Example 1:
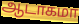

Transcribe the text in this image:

ஆடாகமா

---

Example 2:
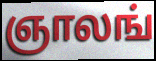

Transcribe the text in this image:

ஞாலங்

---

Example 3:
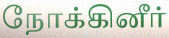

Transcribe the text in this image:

நோக்கினீர்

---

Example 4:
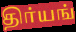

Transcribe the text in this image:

திர்யங்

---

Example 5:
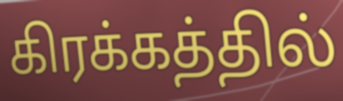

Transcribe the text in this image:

கிரக்கத்தில்